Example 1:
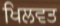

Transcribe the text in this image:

ਖਿਲਵਤ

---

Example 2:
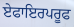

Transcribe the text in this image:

ਏਫਾਇਰਪਰੂਫ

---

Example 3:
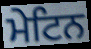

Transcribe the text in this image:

ਮੇਟਿਨ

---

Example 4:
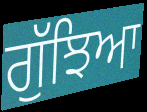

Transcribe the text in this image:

ਗੁੱਝਿਆ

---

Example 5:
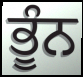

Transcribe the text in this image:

ਭੂੰਨ